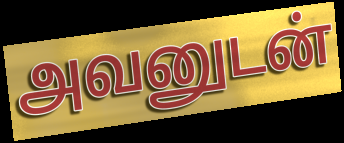
அவனுடன்